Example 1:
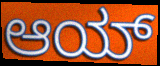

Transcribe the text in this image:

ಆಯ್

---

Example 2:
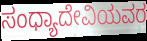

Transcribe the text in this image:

ಸಂಧ್ಯಾದೇವಿಯವರ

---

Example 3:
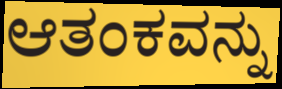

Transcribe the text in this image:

ಆತಂಕವನ್ನು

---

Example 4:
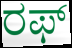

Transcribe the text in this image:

ರಫ್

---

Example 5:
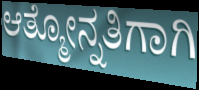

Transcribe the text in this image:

ಆತ್ಮೋನ್ನತಿಗಾಗಿ